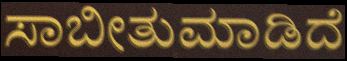
ಸಾಬೀತುಮಾಡಿದೆ